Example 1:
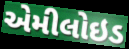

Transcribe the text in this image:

એમીલોઇડ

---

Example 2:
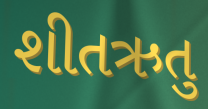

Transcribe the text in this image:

શીતઋતુ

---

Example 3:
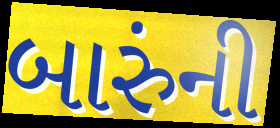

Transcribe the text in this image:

બારુંની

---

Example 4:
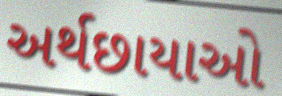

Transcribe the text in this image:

અર્થછાયાઓ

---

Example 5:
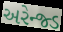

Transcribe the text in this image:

અરેન્જ્ડ